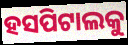
ହସପିଟାଲକୁ